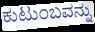
ಕುಟುಂಬವನ್ನು